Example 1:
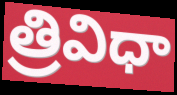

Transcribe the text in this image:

త్రివిధా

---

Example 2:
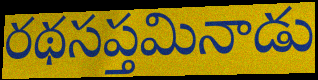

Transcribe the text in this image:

రథసప్తమినాడు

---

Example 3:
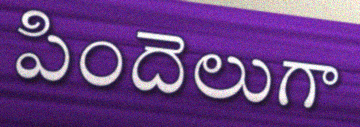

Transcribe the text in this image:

పిందెలుగా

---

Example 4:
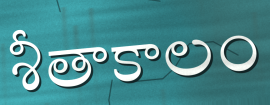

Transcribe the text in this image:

శీతాకాలం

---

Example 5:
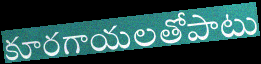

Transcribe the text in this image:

కూరగాయలతోపాటు